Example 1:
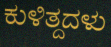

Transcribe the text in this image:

ಕುಳಿತ್ದದಳು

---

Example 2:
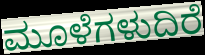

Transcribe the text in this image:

ಮೂಳೆಗಳುದಿರೆ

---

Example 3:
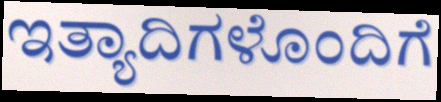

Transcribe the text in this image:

ಇತ್ಯಾದಿಗಳೊಂದಿಗೆ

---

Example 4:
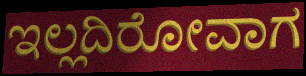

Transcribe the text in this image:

ಇಲ್ಲದಿರೋವಾಗ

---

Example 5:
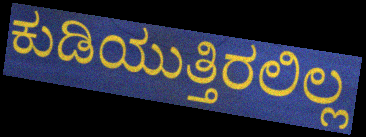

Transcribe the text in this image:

ಕುಡಿಯುತ್ತಿರಲಿಲ್ಲ